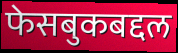
फेसबुकबद्दल